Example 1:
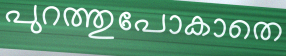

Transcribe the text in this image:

പുറത്തുപോകാതെ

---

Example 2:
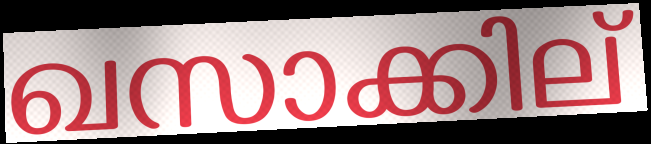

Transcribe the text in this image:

ഖസാക്കില്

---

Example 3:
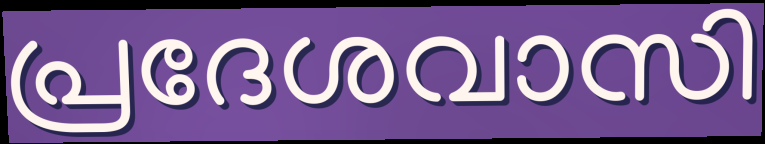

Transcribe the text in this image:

പ്രദേശവാസി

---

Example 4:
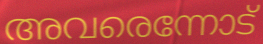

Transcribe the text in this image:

അവരെന്നോട്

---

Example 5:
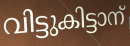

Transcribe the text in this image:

വിട്ടുകിട്ടാന്